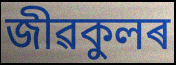
জীৱকুলৰ